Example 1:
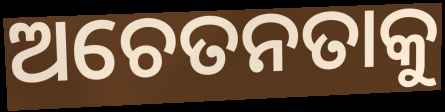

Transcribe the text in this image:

ଅଚେତନତାକୁ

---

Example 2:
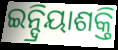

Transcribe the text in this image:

ଇନ୍ଦ୍ରିୟାଶକ୍ତି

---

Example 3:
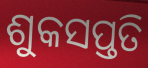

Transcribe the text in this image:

ଶୁକସପ୍ତତି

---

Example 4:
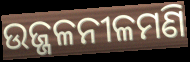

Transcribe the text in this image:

ଉଜ୍ଜଳନୀଳମଣି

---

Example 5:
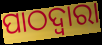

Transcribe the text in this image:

ପାଠଦ୍ଵାରା